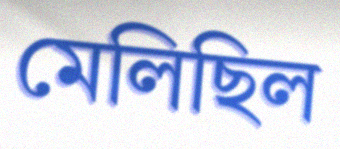
মেলিছিল